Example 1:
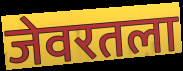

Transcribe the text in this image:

जेवरतला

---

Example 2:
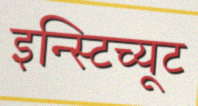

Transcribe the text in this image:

इन्स्टिच्यूट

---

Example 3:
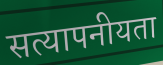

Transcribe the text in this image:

सत्यापनीयता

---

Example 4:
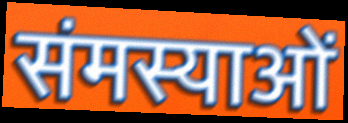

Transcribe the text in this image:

संमस्याओं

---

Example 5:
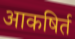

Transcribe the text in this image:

आकषिर्त